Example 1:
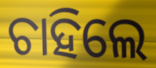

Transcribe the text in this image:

ଚାହିଲେ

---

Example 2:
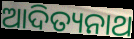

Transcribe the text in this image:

ଆଦିତ୍ୟନାଥ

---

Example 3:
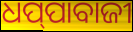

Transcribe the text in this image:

ଧପ୍‌ପାବାଜୀ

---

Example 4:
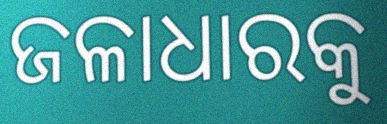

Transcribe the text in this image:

ଜଳାଧାରକୁ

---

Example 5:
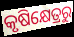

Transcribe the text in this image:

କୃଷିକ୍ଷେତ୍ରରୁ